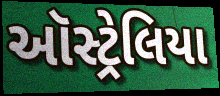
ઑસ્ટ્રેલિયા